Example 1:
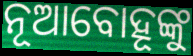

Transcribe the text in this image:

ନୂଆବୋହୂଙ୍କୁ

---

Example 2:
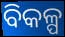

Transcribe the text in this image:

ବିକଳ୍ପ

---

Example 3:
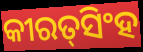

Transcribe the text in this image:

କୀରତ୍‍ସିଂହ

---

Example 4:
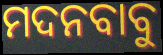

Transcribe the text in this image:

ମଦନବାବୁ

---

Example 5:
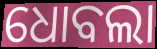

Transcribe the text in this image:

ଧୋବଲା